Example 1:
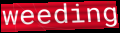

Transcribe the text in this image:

weeding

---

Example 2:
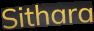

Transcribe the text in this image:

Sithara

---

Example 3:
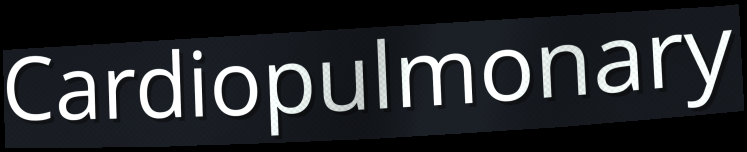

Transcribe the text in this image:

Cardiopulmonary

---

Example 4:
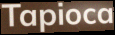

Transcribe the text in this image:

Tapioca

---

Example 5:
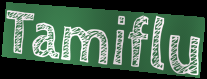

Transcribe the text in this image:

Tamiflu